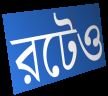
রটেও